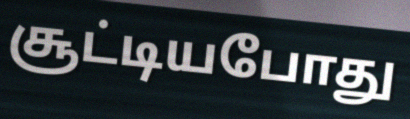
சூட்டியபோது